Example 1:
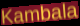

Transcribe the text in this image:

Kambala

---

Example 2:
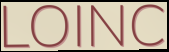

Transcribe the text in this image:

LOINC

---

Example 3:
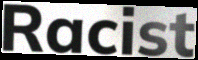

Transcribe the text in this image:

Racist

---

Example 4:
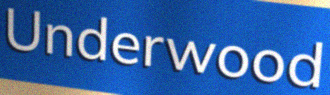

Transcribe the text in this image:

Underwood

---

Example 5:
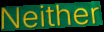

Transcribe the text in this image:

Neither